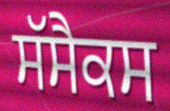
ਸੱਸੈਕਸ